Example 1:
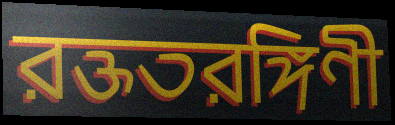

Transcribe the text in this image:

রক্ততরঙ্গিণী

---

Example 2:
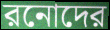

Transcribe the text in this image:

রনোদের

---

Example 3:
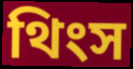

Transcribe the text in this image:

থিংস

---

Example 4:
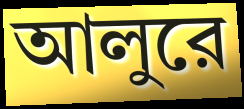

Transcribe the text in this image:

আলুরে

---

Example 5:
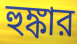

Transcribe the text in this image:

হুঙ্কার